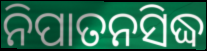
ନିପାତନସିଦ୍ଧ